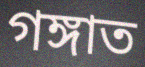
গঙ্গাত